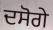
ਦਸੋਗੇ